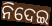
ନିଦେଇ